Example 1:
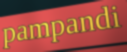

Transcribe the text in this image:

pampandi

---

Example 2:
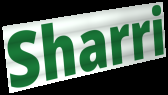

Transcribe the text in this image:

Sharri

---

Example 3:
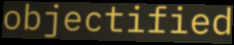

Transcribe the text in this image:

objectified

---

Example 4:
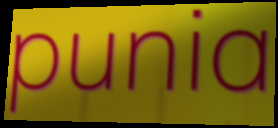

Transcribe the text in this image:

punia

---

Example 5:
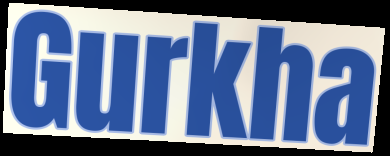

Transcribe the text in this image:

Gurkha